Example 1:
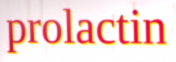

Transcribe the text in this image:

prolactin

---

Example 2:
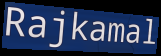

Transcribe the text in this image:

Rajkamal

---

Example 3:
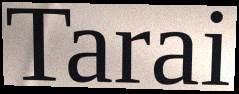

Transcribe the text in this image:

Tarai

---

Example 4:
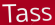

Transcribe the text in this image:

Tass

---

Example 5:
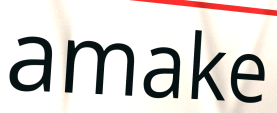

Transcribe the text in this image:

amake